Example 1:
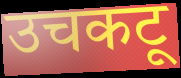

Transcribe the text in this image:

उचकटू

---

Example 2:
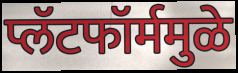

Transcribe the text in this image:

प्लॅटफॉर्ममुळे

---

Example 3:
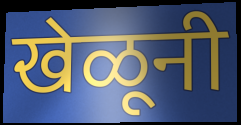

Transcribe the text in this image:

खेळूनी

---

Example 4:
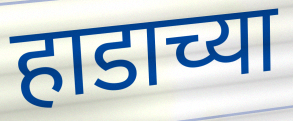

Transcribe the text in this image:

हाडाच्या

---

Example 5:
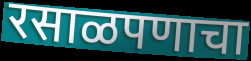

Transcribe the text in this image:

रसाळपणाचा